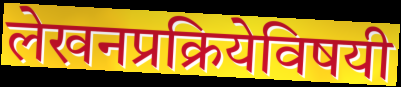
लेखनप्रक्रियेविषयी